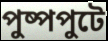
পুষ্পপুটে